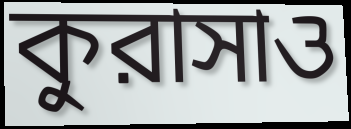
কুরাসাও